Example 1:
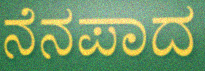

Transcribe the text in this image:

ನೆನಪಾದ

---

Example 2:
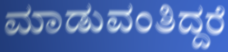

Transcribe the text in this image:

ಮಾಡುವಂತಿದ್ದರೆ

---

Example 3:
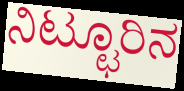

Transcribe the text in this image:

ನಿಟ್ಟೂರಿನ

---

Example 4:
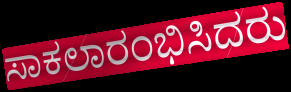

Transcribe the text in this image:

ಸಾಕಲಾರಂಭಿಸಿದರು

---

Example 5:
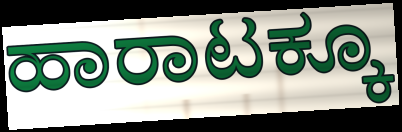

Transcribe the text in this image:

ಹಾರಾಟಕ್ಕೂ